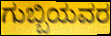
ಗುಬ್ಬಿಯವರ